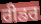
ਰੀਡਰ